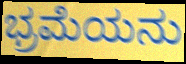
ಭ್ರಮೆಯನು